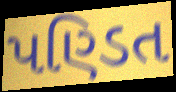
પણ્ડિત